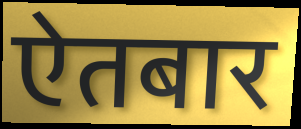
ऐतबार